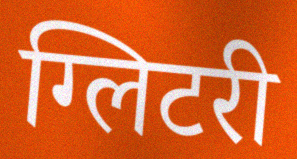
ग्लिटरी